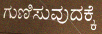
ಗುಣಿಸುವುದಕ್ಕೆ